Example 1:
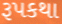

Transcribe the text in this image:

રૂપકથા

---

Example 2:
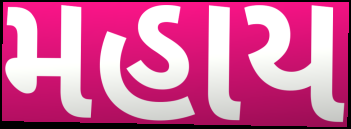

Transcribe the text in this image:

મહાય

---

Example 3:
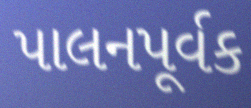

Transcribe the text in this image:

પાલનપૂર્વક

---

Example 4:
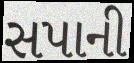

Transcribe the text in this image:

સપાની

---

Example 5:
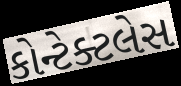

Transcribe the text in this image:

કોન્ટેક્ટલેસ